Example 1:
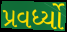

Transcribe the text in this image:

પ્રવર્ધ્યો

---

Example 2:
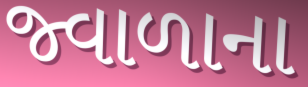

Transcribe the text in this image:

જ્વાળાના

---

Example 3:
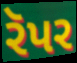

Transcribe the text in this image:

રૅપર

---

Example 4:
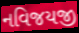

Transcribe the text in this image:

નવિજયજી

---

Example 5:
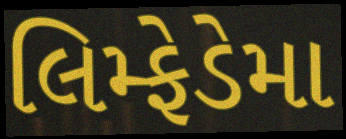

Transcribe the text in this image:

લિમ્ફેડેમા